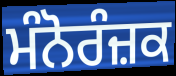
ਮੰਨੋਰੰਜ਼ਕ